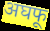
अघफू